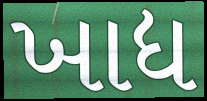
ખાદ્ય